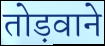
तोड़वाने